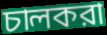
চালকরা